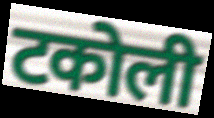
टकोली